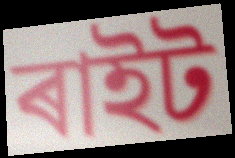
ৰাইট